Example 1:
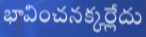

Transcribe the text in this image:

భావించనక్కర్లేదు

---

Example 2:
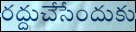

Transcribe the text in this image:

రద్దుచేసేందుకు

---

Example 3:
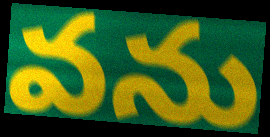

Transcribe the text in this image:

వను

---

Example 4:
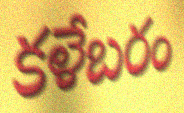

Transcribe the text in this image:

కళేబరం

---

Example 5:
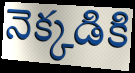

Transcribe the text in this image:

నెక్కడికి